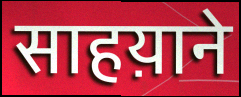
साहय़ाने